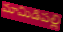
మామిడిపల్లి